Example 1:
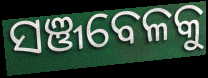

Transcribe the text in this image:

ସଞ୍ଜବେଳକୁ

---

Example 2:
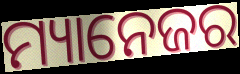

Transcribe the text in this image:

ମ୍ୟାନେଜର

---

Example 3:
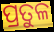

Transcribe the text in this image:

ପ୍ରତୁଳ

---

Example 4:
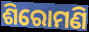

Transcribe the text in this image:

ଶିରୋମଣି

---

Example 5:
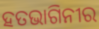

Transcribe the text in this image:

ହତଭାଗିନୀର